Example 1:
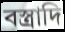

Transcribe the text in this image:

বস্ত্রাদি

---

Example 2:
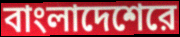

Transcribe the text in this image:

বাংলাদেশেরে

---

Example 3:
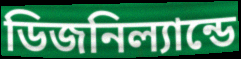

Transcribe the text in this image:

ডিজনিল্যান্ডে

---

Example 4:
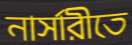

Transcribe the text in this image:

নার্সারীতে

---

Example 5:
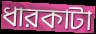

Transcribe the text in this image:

ধারকাটা